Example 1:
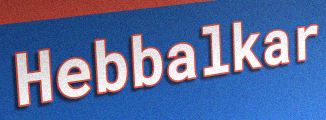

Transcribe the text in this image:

Hebbalkar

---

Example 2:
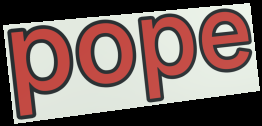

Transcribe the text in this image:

pope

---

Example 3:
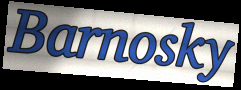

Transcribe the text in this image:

Barnosky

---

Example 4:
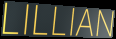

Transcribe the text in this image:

LILLIAN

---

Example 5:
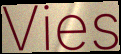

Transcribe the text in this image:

Vies